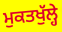
ਮੁਕਤਖੁੱਲ੍ਹੇ